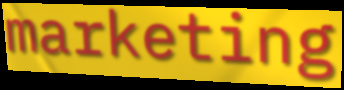
marketing